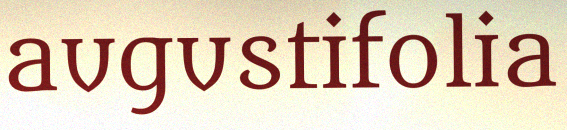
augustifolia